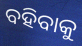
ବହିବାକୁ